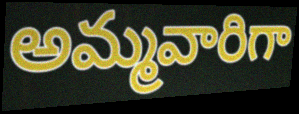
అమ్మవారిగా